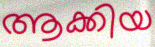
ആക്കിയ